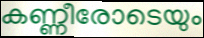
കണ്ണീരോടെയും